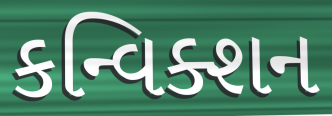
કન્વિક્શન